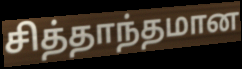
சித்தாந்தமான